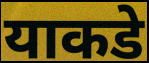
याकडे